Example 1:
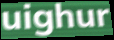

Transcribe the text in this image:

uighur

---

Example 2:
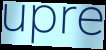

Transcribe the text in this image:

upre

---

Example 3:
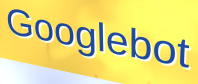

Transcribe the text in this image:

Googlebot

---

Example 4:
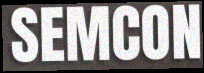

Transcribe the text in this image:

SEMCON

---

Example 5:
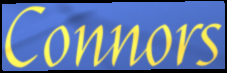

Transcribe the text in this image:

Connors